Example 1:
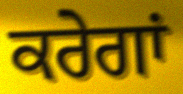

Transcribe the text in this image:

ਕਰੇਗਾਂ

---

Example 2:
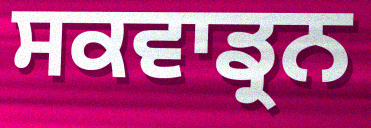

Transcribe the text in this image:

ਸਕਵਾਡ੍ਰਨ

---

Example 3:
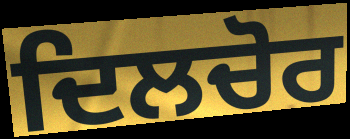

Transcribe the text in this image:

ਦਿਲਚੋਰ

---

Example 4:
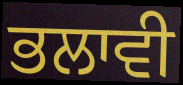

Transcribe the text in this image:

ਭਲਾਵੀ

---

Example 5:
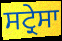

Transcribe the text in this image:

ਸਟ੍ਰੇਸਾ